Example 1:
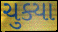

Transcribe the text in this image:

ચુક્યા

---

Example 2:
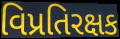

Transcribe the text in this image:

વિપ્રતિરક્ષક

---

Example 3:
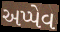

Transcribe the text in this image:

અપ્પેવ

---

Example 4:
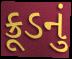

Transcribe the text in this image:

ક્રૂડનું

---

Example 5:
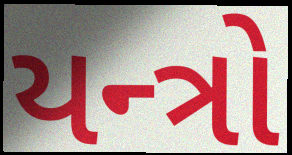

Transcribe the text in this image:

યન્ત્રો